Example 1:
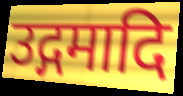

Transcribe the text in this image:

उद्गमादि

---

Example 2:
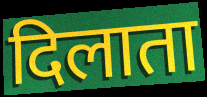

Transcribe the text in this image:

दिलाता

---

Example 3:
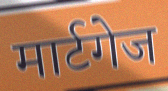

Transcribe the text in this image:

मार्टगेज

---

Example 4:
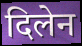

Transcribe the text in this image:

दिलेन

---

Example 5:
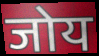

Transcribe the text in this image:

जोय